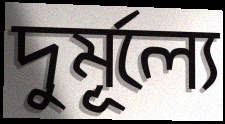
দুর্মূল্যে